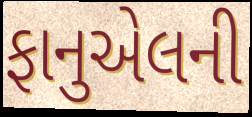
ફાનુએલની